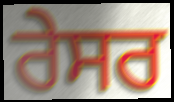
ਰੇਸਰ